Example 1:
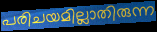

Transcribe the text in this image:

പരിചയമില്ലാതിരുന്ന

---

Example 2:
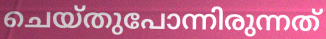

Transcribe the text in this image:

ചെയ്തുപോന്നിരുന്നത്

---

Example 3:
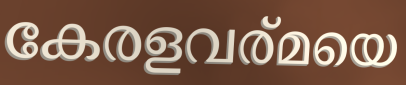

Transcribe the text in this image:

കേരളവര്മയെ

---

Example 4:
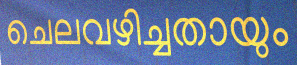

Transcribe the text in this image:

ചെലവഴിച്ചതായും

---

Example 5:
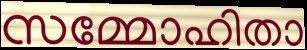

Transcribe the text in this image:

സമ്മോഹിതാ